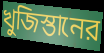
খুজিস্তানের